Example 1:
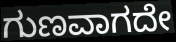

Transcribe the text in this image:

ಗುಣವಾಗದೇ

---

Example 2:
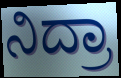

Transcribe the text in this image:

ನಿದ್ರಾ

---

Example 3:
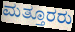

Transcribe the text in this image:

ಮತ್ತೂರರು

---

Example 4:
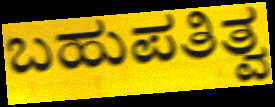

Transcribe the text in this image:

ಬಹುಪತಿತ್ವ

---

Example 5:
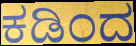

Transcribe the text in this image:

ಕಡಿಂದ